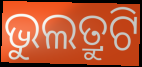
ଭୁଲତ୍ରୁଟି